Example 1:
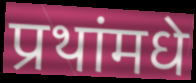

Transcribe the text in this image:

प्रथांमधे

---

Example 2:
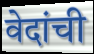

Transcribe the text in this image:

वेदांची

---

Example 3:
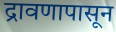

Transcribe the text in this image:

द्रावणापासून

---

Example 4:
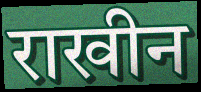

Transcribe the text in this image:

राखीन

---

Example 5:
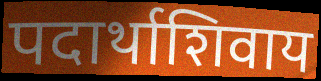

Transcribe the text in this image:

पदार्थाशिवाय